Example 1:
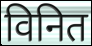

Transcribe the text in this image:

विनित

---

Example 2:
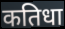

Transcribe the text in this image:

कतिधा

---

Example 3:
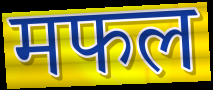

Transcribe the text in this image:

मफल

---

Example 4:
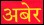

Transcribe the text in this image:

अबेर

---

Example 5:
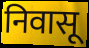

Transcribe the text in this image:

निवासू